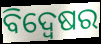
ବିଦ୍ବେଷର